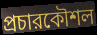
প্রচারকৌশল